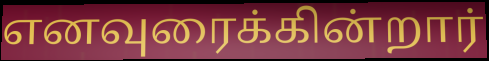
எனவுரைக்கின்றார்